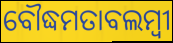
ବୌଦ୍ଧମତାବଲମ୍ବୀ